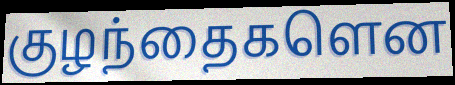
குழந்தைகளென